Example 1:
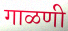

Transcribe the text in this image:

गाळणी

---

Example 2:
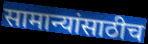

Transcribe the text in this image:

सामान्यांसाठीच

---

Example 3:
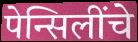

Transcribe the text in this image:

पेन्सिलींचे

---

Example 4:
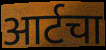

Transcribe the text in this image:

आर्टचा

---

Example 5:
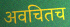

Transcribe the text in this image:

अवचितच